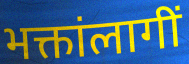
भक्तांलागीं